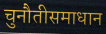
चुनौतीसमाधान